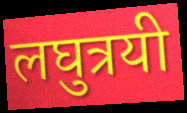
लघुत्रयी